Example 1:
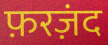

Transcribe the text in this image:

फ़रज़ंद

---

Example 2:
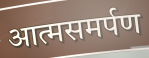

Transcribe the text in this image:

आत्मसमर्पण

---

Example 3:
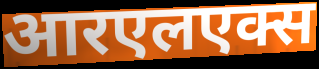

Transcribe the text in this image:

आरएलएक्स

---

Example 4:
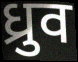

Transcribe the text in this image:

ध्रुव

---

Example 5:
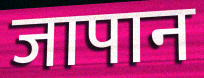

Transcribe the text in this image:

जापान